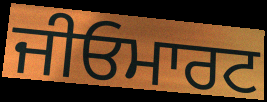
ਜੀਓਮਾਰਟ